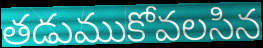
తడుముకోవలసిన